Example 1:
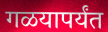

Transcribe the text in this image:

गळयापर्यंत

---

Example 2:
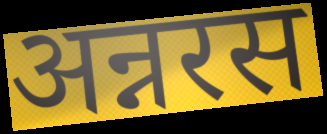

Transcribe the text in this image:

अन्नरस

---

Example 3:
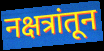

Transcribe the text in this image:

नक्षत्रांतून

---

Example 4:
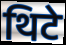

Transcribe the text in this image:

थिटे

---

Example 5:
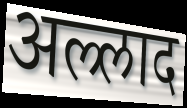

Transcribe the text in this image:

अल्लाद